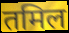
तमिल